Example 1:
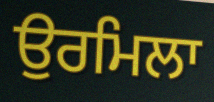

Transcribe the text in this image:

ਉਰਮਿਲਾ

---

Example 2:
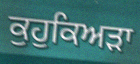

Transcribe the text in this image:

ਕੁਹੁਕਿਅੜਾ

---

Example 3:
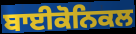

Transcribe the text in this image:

ਬਾਈਕੋਨਿਕਲ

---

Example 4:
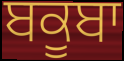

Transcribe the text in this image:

ਬਕੂਬਾ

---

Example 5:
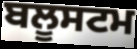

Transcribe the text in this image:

ਬਲੂਸਟਮ